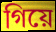
গিয়ে